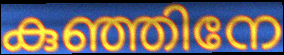
കുഞ്ഞിനേ